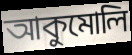
আকুমোলি